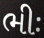
ભીઃ